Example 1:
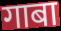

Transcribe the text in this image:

गाबा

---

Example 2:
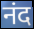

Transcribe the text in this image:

नंद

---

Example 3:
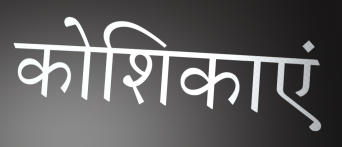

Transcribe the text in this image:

कोशिकाएं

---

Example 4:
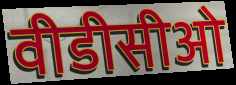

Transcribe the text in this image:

वीडीसीओ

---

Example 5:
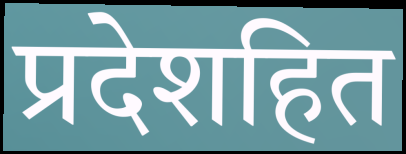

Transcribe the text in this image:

प्रदेशहित